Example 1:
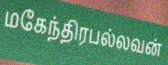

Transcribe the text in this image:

மகேந்திரபல்லவன்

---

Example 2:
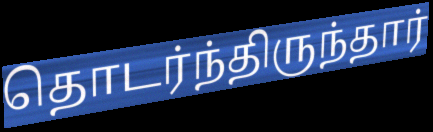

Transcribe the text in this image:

தொடர்ந்திருந்தார்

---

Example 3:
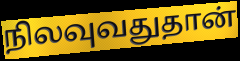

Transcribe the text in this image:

நிலவுவதுதான்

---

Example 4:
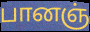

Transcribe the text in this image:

பானஞ்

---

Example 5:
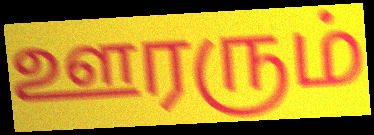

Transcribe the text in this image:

ஊரரும்